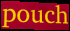
pouch